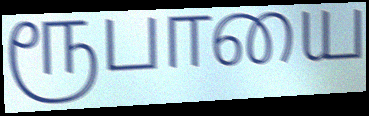
ரூபாயை